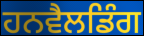
ਹਨਵੈਲਡਿੰਗ